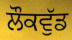
ਲੌਕਵੁੱਡ